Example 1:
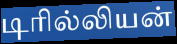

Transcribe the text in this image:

டிரில்லியன்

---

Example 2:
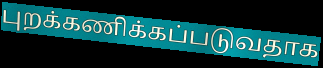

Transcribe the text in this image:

புறக்கணிக்கப்படுவதாக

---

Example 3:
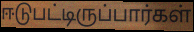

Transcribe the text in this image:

ஈடுபட்டிருப்பார்கள்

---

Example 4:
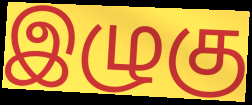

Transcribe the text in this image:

இழுகு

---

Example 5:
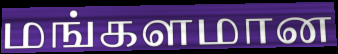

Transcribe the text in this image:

மங்களமான